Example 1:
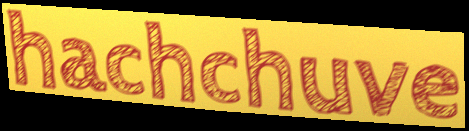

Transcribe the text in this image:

hachchuve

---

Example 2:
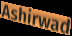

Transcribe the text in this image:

Ashirwad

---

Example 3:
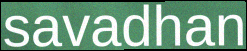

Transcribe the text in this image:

savadhan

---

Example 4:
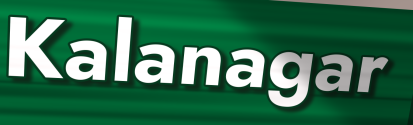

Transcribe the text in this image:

Kalanagar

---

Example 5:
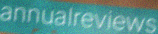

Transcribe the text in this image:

annualreviews